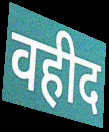
वहीद